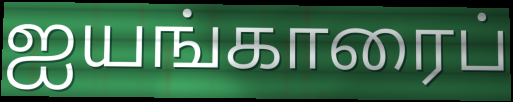
ஐயங்காரைப்